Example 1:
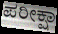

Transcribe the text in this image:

ಪರೀಕ್ಷಾ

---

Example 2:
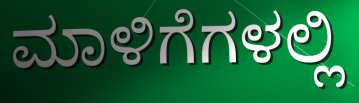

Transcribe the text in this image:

ಮಾಳಿಗೆಗಳಲ್ಲಿ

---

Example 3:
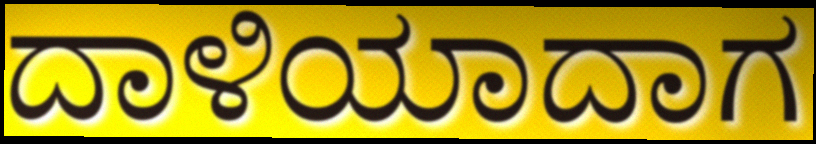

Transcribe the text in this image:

ದಾಳಿಯಾದಾಗ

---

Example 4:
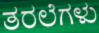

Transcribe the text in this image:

ತರಲೆಗಳು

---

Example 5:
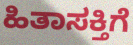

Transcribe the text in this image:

ಹಿತಾಸಕ್ತಿಗೆ